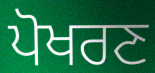
ਪੋਖਰਣ